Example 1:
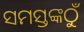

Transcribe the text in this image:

ସମସ୍ତଙ୍କଠୁଁ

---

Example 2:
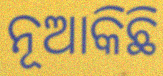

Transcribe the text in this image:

ନୂଆକିଛି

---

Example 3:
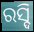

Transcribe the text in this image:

ରସ୍ଦି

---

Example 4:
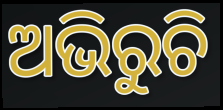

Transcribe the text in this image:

ଅଭିରୁଚି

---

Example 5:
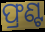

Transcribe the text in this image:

ଫ୍ରଣ୍ଟ